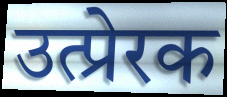
उत्प्रेरक